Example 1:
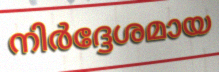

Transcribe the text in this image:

നിർദ്ദേശമായ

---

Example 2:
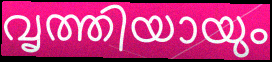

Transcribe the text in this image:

വൃത്തിയായും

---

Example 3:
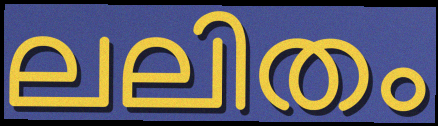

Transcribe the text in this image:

ലലിതം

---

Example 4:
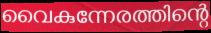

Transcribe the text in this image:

വൈകുന്നേരത്തിന്റെ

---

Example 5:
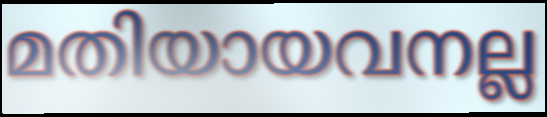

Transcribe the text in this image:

മതിയായവനല്ല